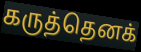
கருத்தெனக்